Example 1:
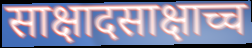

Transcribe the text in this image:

साक्षादसाक्षाच्च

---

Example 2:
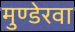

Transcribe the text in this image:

मुण्डेरवा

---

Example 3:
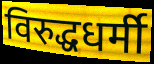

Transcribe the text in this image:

विरुद्धधर्मी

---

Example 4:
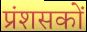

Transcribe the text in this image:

प्रंशसकों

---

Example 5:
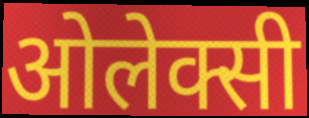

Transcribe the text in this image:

ओलेक्सी